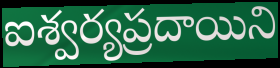
ఐశ్వర్యప్రదాయిని